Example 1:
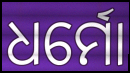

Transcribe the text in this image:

ଧର୍ମୋ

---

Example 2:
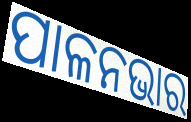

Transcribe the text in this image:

ପାଳନଭାର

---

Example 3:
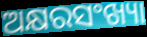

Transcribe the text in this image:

ଅକ୍ଷରସଂଖ୍ୟା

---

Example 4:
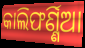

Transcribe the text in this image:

କାଲିଫର୍ଣ୍ଣିଆ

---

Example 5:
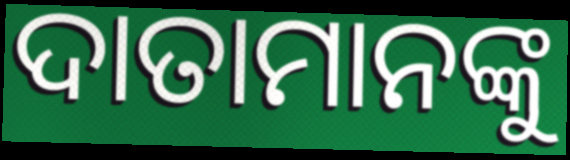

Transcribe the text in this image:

ଦାତାମାନଙ୍କୁ